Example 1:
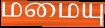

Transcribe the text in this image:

மமையு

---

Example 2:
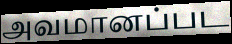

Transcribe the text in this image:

அவமானப்பட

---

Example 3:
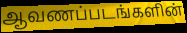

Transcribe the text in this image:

ஆவணப்படங்களின்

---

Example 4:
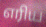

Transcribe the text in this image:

எரிய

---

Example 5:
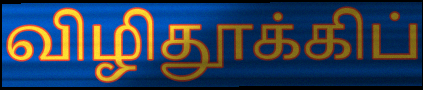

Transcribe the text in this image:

விழிதூக்கிப்